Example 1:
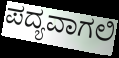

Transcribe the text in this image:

ಪದ್ಯವಾಗಲಿ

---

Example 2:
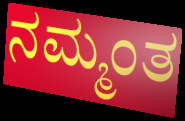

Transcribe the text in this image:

ನಮ್ಮಂತ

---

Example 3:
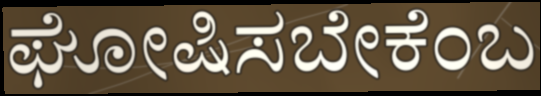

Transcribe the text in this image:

ಘೋಷಿಸಬೇಕೆಂಬ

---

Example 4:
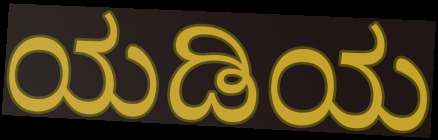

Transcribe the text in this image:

ಯಡಿಯ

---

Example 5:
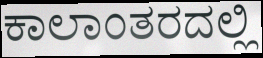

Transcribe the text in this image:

ಕಾಲಾಂತರದಲ್ಲಿ